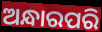
ଅନ୍ଧାରପରି